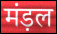
मंड़ल